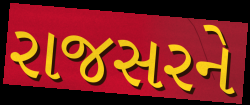
રાજસરને